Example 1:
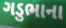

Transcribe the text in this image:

ગડુભાના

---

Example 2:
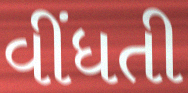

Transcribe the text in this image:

વીંધતી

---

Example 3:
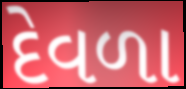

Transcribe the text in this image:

દેવળા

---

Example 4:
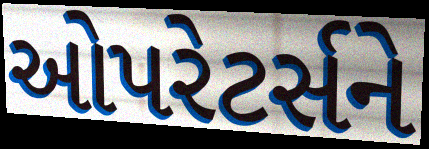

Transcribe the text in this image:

ઓપરેટર્સને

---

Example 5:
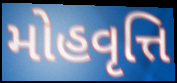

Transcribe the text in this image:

મોહવૃત્તિ